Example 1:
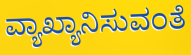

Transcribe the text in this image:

ವ್ಯಾಖ್ಯಾನಿಸುವಂತೆ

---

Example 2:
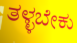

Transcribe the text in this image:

ತಳ್ಳಬೇಕು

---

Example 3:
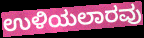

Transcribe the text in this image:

ಉಳಿಯಲಾರವು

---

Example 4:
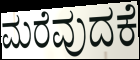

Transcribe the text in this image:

ಮರೆವುದಕೆ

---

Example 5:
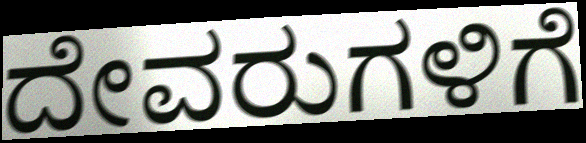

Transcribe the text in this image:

ದೇವರುಗಳಿಗೆ